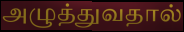
அழுத்துவதால்